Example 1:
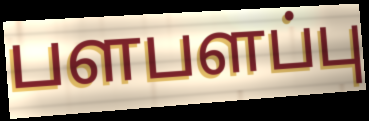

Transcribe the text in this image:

பளபளப்பு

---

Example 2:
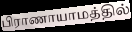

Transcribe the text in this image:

பிராணாயாமத்தில்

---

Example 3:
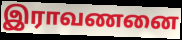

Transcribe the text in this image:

இராவணனை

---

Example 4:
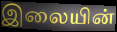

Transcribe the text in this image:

இலையின்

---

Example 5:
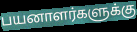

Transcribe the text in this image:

பயனாளர்களுக்கு